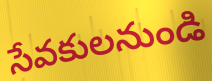
సేవకులనుండి